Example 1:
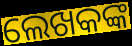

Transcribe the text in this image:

ଲେଖକଙ୍କ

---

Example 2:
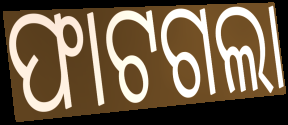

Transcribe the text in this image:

ଫାଟଗଲା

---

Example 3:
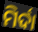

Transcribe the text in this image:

ମିର୍ଦା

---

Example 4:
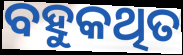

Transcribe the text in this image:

ବହୁକଥିତ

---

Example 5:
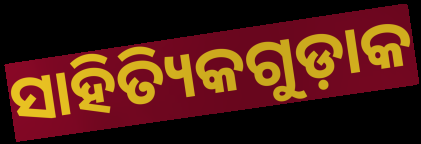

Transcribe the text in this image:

ସାହିତ୍ୟିକଗୁଡ଼ାକ